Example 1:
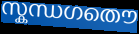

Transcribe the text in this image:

സ്കന്ധഗതൌ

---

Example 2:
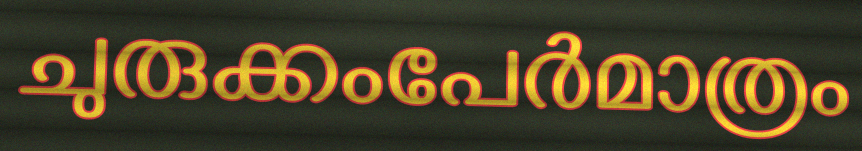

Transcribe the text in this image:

ചുരുക്കംപേർമാത്രം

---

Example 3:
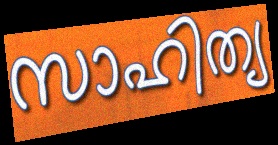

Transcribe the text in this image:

സാഹിത്യ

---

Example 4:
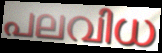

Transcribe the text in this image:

പലവിധ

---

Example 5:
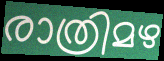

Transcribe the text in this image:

രാത്രിമഴ